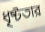
ধৃষ্টতার